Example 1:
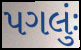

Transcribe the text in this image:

પગલુંઃ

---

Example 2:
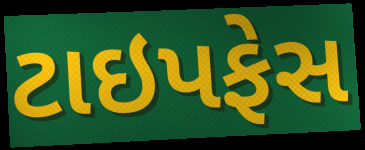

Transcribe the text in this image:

ટાઇપફેસ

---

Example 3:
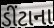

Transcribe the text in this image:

ડીંટાના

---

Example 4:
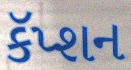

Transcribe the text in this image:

કૅપ્શન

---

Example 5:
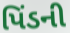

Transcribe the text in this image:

પિંડની